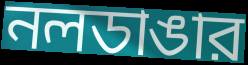
নলডাঙার